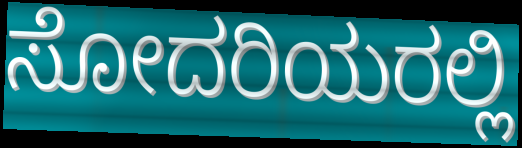
ಸೋದರಿಯರಲ್ಲಿ